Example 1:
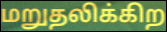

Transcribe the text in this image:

மறுதலிக்கிற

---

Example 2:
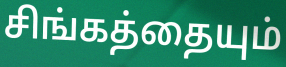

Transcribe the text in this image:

சிங்கத்தையும்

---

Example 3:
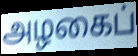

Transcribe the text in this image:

அழகைப்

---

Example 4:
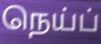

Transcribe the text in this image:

நெய்ப்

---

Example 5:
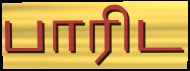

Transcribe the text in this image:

பாரிட